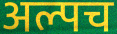
अल्पच